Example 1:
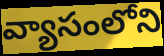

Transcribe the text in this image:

వ్యాసంలోని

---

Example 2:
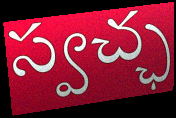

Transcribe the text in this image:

స్వచ్ఛ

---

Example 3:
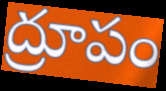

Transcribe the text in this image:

ద్రూపం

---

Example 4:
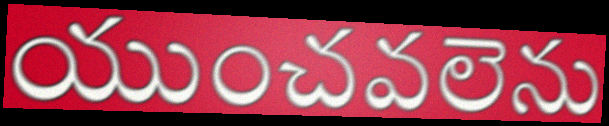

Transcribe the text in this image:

యుంచవలెను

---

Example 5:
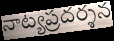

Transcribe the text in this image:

నాట్యప్రదర్శన